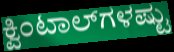
ಕ್ವಿಂಟಾಲ್‌ಗಳಷ್ಟು